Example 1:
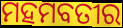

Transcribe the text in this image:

ମହମବତୀର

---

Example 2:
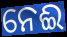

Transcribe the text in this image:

ନେଈ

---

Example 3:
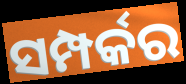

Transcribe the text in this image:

ସମ୍ପର୍କର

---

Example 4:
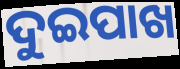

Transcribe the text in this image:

ଦୁଇପାଖ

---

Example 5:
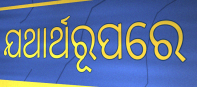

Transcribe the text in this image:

ଯଥାର୍ଥରୂପରେ